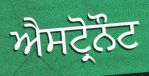
ਐਸਟ੍ਰੋਨੌਟ